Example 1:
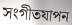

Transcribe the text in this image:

সংগীতযাপন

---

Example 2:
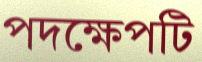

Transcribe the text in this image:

পদক্ষেপটি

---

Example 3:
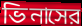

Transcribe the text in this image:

ভিনাসের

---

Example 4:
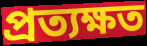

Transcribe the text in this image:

প্রত্যক্ষত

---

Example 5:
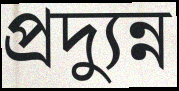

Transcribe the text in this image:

প্রদ্যুন্ন